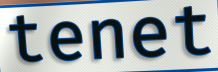
tenet